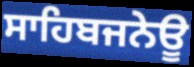
ਸਾਹਿਬਜਨੇਊ